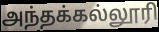
அந்தக்கல்லூரி